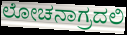
ಲೋಚನಾಗ್ರದಲಿ